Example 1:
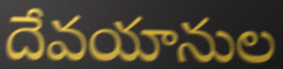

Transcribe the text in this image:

దేవయానుల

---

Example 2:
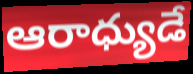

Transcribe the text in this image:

ఆరాధ్యుడే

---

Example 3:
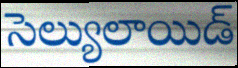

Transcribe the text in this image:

సెల్యులాయిడ్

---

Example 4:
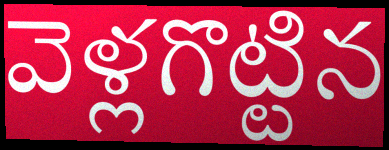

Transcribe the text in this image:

వెళ్లగొట్టిన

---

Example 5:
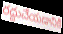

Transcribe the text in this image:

రద్దుచేయడానికి